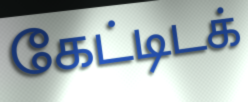
கேட்டிடக்